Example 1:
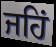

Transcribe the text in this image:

ਜਹਿਂ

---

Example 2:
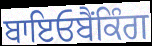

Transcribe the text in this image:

ਬਾਇਓਬੈਂਕਿੰਗ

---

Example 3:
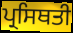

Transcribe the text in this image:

ਪ੍ਰਸਿਥਤੀ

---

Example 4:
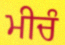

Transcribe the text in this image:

ਮੀਚੰ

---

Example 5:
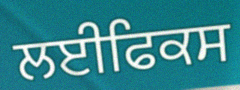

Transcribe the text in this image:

ਲਈਫਿਕਸ